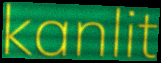
kanlit